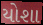
યોશા